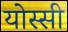
योस्सी